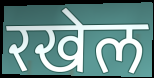
रखेल